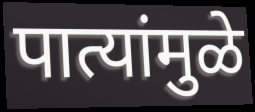
पात्यांमुळे